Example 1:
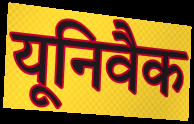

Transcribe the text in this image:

यूनिवैक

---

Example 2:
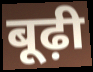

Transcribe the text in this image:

बूढ़ी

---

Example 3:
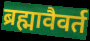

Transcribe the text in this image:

ब्रह्मावैवर्त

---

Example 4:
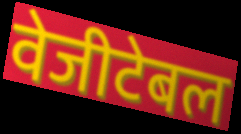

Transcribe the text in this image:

वेजीटेबल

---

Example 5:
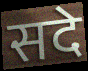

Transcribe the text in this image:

सदे